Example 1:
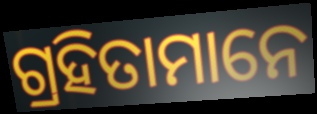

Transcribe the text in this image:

ଗ୍ରହିତାମାନେ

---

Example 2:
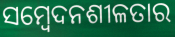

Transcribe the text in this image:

ସମ୍ୱେଦନଶୀଳତାର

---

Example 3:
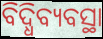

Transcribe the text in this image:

ବିଦ୍ଧିବ୍ୟବସ୍ଥା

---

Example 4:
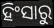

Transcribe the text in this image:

ହିଂସାରୁ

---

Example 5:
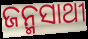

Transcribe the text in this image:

ଜନ୍ମସାଥୀ